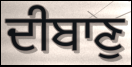
ਦੀਬਾਣੁ